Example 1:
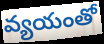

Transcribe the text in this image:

వ్యయంతో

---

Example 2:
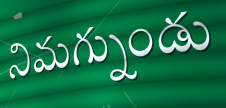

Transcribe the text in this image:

నిమగ్నుండు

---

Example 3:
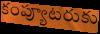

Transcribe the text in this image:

కంప్యూటరుకు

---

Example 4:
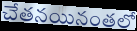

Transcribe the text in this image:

చేతనయినంతలో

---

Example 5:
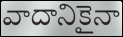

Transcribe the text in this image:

వాదానికైనా